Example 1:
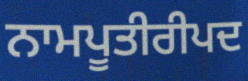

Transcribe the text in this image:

ਨਾਮਪੂਤੀਰੀਪਦ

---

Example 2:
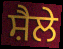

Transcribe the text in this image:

ਸ਼ੈਲੇ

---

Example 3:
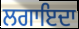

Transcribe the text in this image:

ਲਗਾਇਦਾ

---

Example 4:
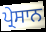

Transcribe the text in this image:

ਪ੍ਰੇਸਾਨ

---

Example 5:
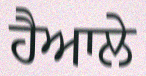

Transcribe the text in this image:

ਹੈਆਲੇ